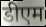
डीएम